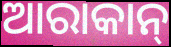
ଆରାକାନ୍